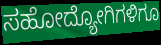
ಸಹೋದ್ಯೋಗಿಗಳಿಗೂ